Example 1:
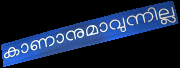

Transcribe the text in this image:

കാണാനുമാവുന്നില്ല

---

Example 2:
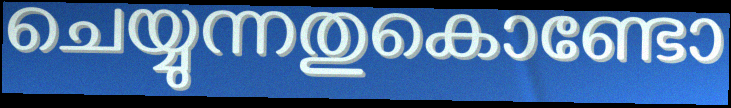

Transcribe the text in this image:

ചെയ്യുന്നതുകൊണ്ടോ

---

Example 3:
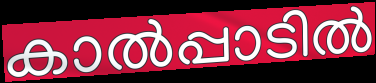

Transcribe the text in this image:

കാൽപ്പാടിൽ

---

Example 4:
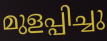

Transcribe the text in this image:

മുളപ്പിച്ചു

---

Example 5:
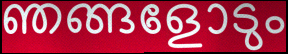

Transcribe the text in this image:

ഞങ്ങളോടും